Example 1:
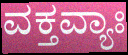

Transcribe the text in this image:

ವಕ್ತವ್ಯಾಃ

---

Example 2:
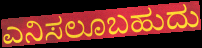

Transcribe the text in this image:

ಎನಿಸಲೂಬಹುದು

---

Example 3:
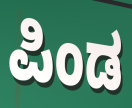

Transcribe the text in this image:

ಪಿಂಡ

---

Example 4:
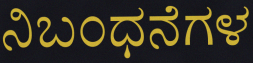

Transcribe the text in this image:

ನಿಬಂಧನೆಗಳ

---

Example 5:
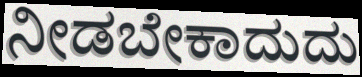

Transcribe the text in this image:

ನೀಡಬೇಕಾದುದು